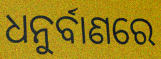
ଧନୁର୍ବାଣରେ